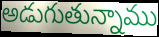
అడుగుతున్నాము